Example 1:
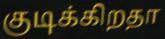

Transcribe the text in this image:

குடிக்கிறதா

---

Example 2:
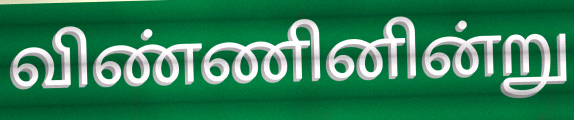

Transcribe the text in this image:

விண்ணினின்று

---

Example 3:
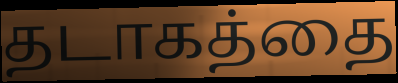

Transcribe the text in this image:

தடாகத்தை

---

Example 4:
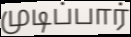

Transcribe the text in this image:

முடிப்பார்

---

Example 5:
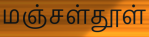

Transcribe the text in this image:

மஞ்சள்தூள்